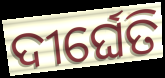
ଦୀର୍ଘେତି